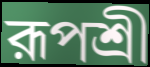
রূপশ্রী